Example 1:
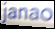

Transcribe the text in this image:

janao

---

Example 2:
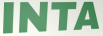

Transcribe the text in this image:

INTA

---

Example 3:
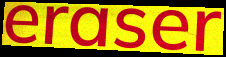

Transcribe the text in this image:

eraser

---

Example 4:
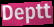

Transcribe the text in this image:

Deptt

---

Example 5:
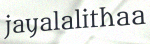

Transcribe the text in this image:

jayalalithaa